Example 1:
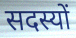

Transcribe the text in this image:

सदस्यों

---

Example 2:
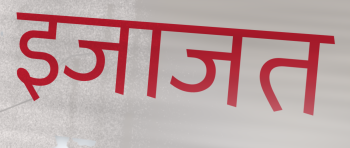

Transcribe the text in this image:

इजाजत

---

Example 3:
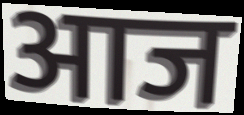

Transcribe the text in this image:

आज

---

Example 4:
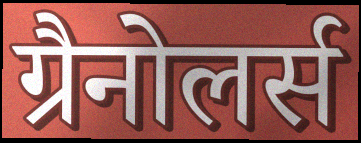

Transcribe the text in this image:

ग्रैनोलर्स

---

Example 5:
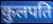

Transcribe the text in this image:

कुलपति